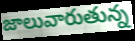
జాలువారుతున్న